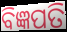
ବିଜ୍ଞପତି